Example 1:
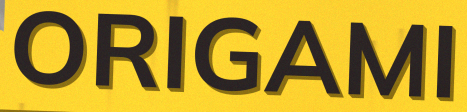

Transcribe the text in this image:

ORIGAMI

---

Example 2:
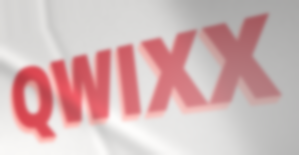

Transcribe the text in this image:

QWIXX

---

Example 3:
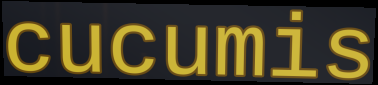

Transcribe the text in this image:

cucumis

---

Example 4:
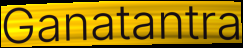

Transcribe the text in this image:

Ganatantra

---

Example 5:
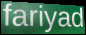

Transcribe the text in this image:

fariyad